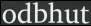
odbhut